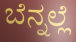
ಬೆನ್ನಲ್ಲೆ